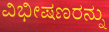
ವಿಭೀಷಣರನ್ನು